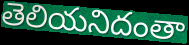
తెలియనిదంతా